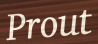
Prout